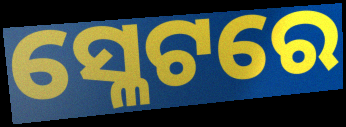
ସ୍ଳେଟରେ